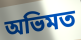
অভিমত